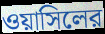
ওয়াসিলের